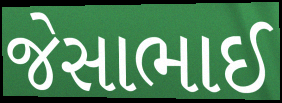
જેસાભાઈ